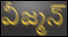
వీజ్మన్